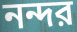
নন্দর